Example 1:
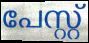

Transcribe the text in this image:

പേസ്റ്റ്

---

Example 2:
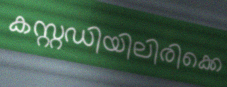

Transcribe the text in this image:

കസ്റ്റഡിയിലിരിക്കെ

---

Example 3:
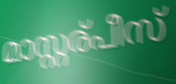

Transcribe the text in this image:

മാസ്റ്റര്പീസ്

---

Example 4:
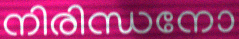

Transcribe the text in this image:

നിരിന്ധനോ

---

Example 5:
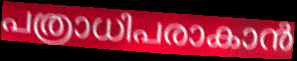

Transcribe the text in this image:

പത്രാധിപരാകാൻ